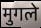
मुगले